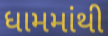
ધામમાંથી